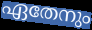
ഏതേനും